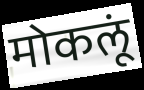
मोकलूं